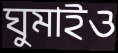
ঘুমাইও